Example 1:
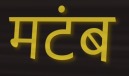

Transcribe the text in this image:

मटंब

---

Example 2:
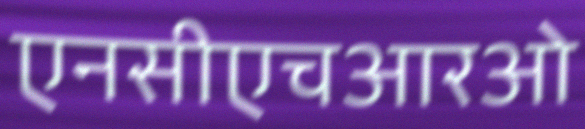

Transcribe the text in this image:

एनसीएचआरओ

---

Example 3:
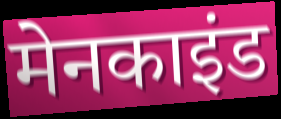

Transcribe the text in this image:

मेनकाइंड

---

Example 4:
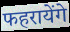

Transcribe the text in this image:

फहरायेंगे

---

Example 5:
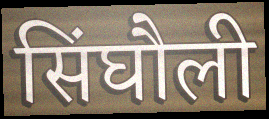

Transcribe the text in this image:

सिंघौली